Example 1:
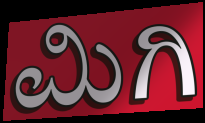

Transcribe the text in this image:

ಮಿಗಿ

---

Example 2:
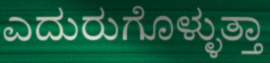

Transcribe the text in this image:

ಎದುರುಗೊಳ್ಳುತ್ತಾ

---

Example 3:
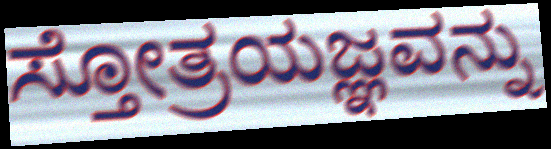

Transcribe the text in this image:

ಸ್ತೋತ್ರಯಜ್ಞವನ್ನು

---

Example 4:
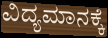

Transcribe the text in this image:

ವಿದ್ಯಮಾನಕ್ಕೆ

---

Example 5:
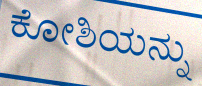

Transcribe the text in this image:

ಕೋಶಿಯನ್ನು